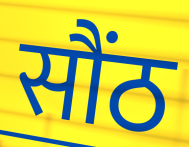
सौंठ